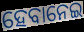
ହେବାନେଇ